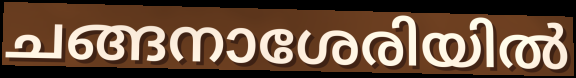
ചങ്ങനാശേരിയിൽ